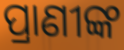
ପ୍ରାଣୀଙ୍କ